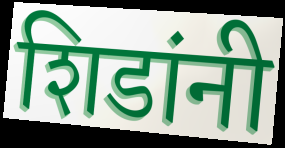
शिडांनी